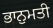
ਭਾਨੁਮਤੀ